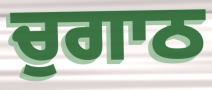
ਚੁਗਾਠ